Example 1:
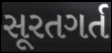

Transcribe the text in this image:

સૂરતગર્ત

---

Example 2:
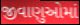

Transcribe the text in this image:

જીવાણુઓમાં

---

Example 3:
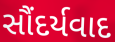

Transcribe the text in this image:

સૌંદર્યવાદ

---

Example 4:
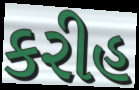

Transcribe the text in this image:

કરીહ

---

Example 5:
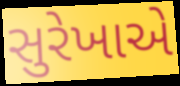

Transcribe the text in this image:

સુરેખાએ